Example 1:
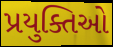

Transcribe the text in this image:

પ્રયુક્તિઓ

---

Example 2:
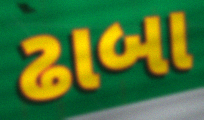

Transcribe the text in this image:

ઢાબા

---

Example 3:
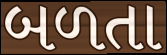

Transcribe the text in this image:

બળતા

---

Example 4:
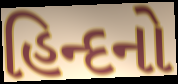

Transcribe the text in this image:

હિન્દનો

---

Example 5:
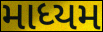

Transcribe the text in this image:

માધ્યમ